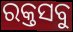
ରକ୍ତସବୁ